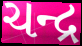
ચન્દ્ર